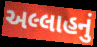
અલ્લાહનું